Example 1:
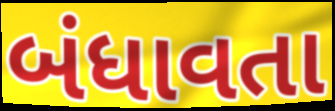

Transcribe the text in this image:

બંધાવતા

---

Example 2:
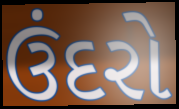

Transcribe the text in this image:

ઉંદરો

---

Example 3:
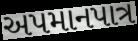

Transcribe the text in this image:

અપમાનપાત્ર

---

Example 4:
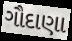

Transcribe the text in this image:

ગૌદાણા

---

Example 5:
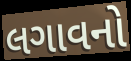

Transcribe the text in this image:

લગાવનો